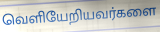
வெளியேறியவர்களை